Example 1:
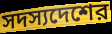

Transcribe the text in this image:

সদস্যদেশের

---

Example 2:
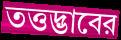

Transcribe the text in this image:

তত্তদ্ভাবের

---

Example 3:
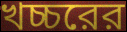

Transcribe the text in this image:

খচ্চরের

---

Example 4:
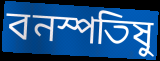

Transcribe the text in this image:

বনস্পতিষু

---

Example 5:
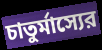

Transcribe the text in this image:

চাতুর্মাস্যের